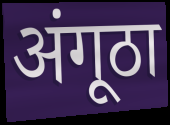
अंगूठा